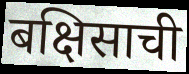
बक्षिसाची